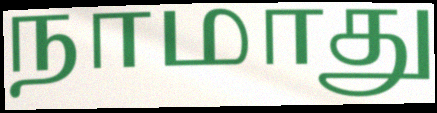
நாமாது